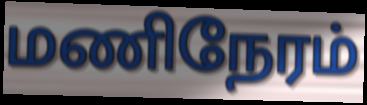
மணிநேரம்